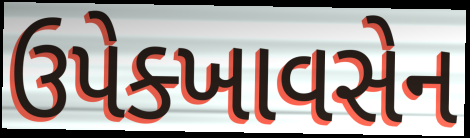
ઉપેક્ખાવસેન